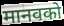
मानवको